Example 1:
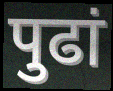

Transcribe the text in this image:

पुढां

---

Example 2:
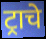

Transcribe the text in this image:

ट्राचे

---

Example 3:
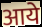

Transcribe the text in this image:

आये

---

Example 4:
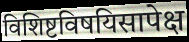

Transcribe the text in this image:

विशिष्टविषयिसापेक्ष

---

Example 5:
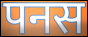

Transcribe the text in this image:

पनस